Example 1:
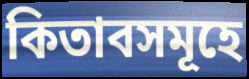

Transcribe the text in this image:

কিতাবসমূহে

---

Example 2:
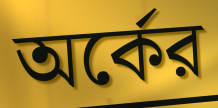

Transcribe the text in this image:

অর্কের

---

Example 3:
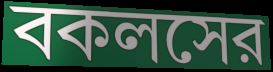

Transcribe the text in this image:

বকলসের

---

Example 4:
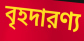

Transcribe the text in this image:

বৃহদারণ্য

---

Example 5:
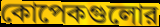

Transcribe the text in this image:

কোপেকগুলোর